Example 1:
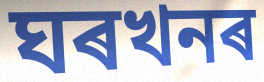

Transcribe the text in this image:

ঘৰখনৰ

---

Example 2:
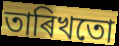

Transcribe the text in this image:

তাৰিখতো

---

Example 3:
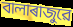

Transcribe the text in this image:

বালাৰাজুৱে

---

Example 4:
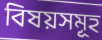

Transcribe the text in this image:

বিষয়সমূহ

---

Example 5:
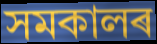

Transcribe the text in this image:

সমকালৰ